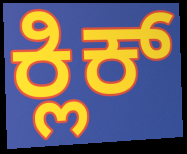
ಕ್ಲಿಕ್